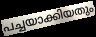
പച്ചയാക്കിയതും